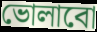
ভোলাবো